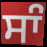
ਸਾੰ